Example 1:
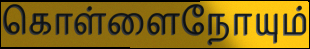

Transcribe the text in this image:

கொள்ளைநோயும்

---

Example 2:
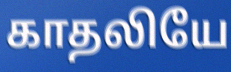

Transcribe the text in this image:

காதலியே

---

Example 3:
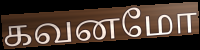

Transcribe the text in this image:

கவனமோ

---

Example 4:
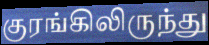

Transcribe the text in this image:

குரங்கிலிருந்து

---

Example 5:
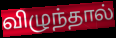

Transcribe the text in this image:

விழுந்தால்